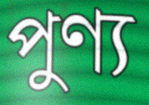
পুণ্য